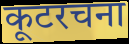
कूटरचना